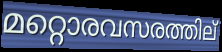
മറ്റൊരവസരത്തില്